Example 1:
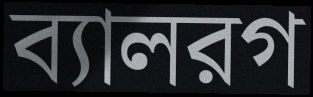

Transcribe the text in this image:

ব্যালরগ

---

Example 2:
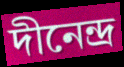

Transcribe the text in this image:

দীনেন্দ্র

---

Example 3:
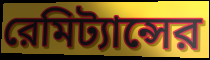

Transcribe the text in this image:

রেমিট্যান্সের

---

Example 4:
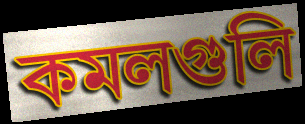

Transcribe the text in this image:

কমলগুলি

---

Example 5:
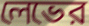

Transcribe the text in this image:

লেভের